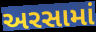
અરસામાં